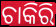
ଚାକିରି